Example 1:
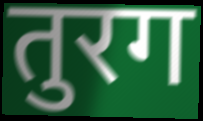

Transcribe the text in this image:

तुरग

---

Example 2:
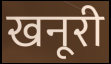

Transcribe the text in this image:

खनूरी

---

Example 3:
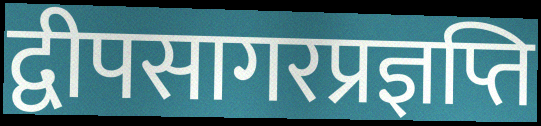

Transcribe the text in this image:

द्वीपसागरप्रज्ञप्ति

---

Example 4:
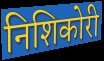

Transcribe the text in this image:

निशिकोरी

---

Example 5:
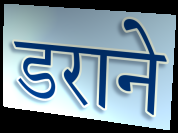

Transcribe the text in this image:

डराने